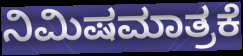
ನಿಮಿಷಮಾತ್ರಕೆ